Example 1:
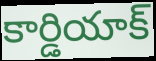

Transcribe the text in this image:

కార్డియాక్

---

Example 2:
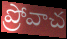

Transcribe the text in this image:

ప్రోవాచ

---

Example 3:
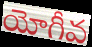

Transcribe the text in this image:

యోగీవ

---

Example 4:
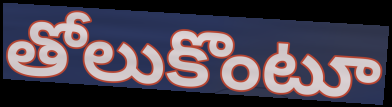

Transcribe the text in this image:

తోలుకొంటూ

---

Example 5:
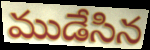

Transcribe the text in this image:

ముడేసిన